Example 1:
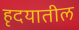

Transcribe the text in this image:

हृदयातील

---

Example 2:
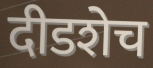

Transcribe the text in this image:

दीडशेच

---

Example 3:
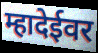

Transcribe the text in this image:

म्हादेईवर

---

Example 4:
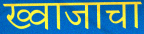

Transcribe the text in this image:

ख्वाजाचा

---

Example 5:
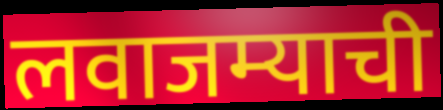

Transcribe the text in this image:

लवाजम्याची